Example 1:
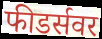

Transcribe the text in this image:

फीडर्सवर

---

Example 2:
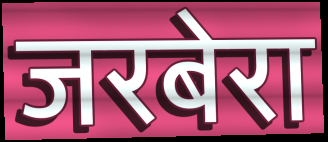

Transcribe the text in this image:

जरबेरा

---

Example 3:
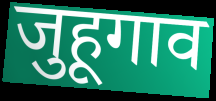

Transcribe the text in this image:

जुहूगाव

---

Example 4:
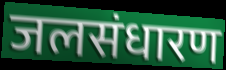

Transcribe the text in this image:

जलसंधारण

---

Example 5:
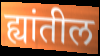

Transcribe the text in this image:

ह्यांतील